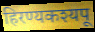
हिरण्यकश्यपू